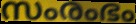
സംരംഭം